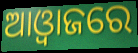
ଆଓ୍ୱାଜରେ